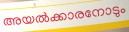
അയൽക്കാരനോടും